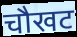
चौखट